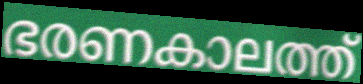
ഭരണകാലത്ത്